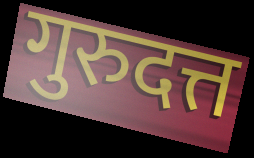
गुरुदत्त